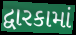
દ્વારકામાં